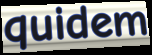
quidem